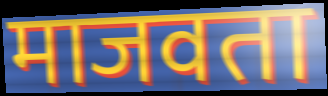
माजवता